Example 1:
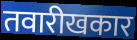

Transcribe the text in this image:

तवारीखकार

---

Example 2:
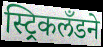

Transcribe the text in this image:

स्ट्रिकलँडने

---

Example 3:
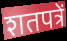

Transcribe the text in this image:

शतपत्रें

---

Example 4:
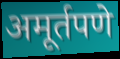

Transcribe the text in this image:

अमूर्तपणे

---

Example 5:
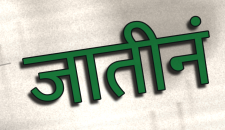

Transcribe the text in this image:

जातीनं